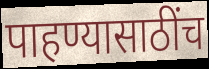
पाहण्यासाठींच